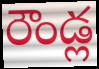
రౌండ్ల